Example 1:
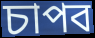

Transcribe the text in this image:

চাপব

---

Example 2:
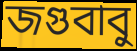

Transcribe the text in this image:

জগুবাবু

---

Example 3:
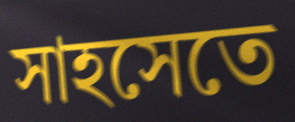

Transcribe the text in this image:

সাহসেতে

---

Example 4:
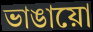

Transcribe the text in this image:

ভাঙায়ো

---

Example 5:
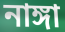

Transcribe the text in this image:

নাঙ্গা